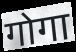
गोगा